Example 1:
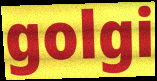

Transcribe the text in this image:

golgi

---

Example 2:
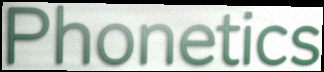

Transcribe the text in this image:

Phonetics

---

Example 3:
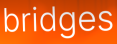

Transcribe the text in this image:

bridges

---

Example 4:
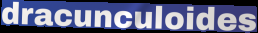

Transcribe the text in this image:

dracunculoides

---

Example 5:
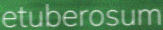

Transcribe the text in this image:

etuberosum